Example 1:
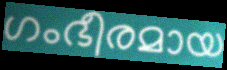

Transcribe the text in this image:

ഗംഭീരമായ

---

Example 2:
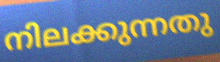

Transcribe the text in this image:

നിലക്കുന്നതു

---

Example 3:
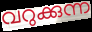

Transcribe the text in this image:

വറുക്കുന്ന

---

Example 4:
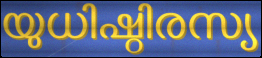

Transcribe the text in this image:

യുധിഷ്ഠിരസ്യ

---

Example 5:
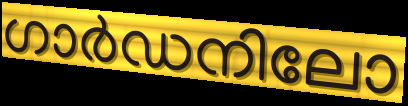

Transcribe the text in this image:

ഗാർഡനിലോ